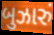
બુઝારું